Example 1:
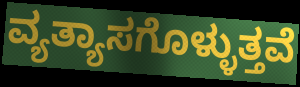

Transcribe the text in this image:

ವ್ಯತ್ಯಾಸಗೊಳ್ಳುತ್ತವೆ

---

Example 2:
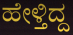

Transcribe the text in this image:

ಹೇಳ್ತಿದ್ದ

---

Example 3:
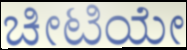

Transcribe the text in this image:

ಚೀಟಿಯೇ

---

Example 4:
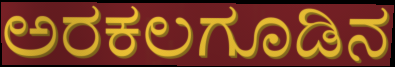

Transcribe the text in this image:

ಅರಕಲಗೂಡಿನ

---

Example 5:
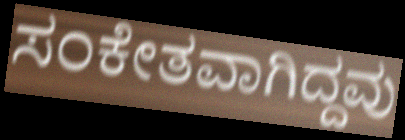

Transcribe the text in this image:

ಸಂಕೇತವಾಗಿದ್ದವು